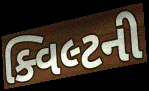
ક્વિલ્ટની